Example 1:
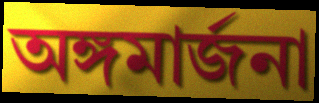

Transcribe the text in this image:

অঙ্গমার্জনা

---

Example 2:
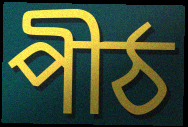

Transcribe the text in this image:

পীঠ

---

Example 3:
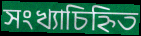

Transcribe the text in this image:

সংখ্যাচিহ্নিত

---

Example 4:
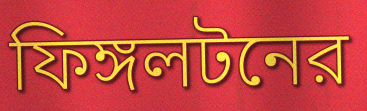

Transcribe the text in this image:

ফিঙ্গলটনের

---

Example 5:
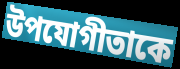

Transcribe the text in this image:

উপযোগীতাকে